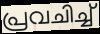
പ്രവചിച്ച്